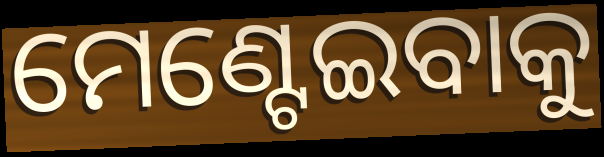
ମେଣ୍ଟେଇବାକୁ